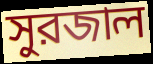
সুরজাল